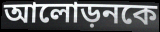
আলোড়নকে